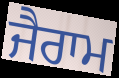
ਜੈਰਾਮ